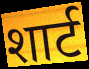
शार्ट